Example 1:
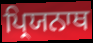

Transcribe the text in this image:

ਪ੍ਰਿਯਨਾਥ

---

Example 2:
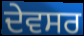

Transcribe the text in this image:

ਦੇਵਸਰ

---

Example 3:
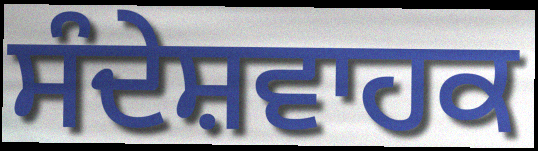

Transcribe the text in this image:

ਸੰਦੇਸ਼ਵਾਹਕ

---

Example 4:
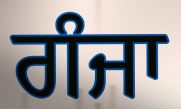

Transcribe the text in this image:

ਗੰਜਾ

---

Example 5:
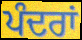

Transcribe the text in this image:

ਪੰਦਰਾਂ